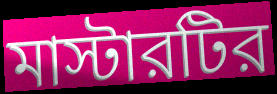
মাস্টারটির